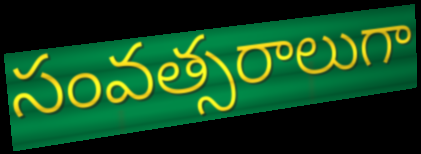
సంవత్సరాలుగా